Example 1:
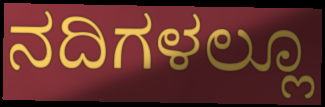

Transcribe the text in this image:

ನದಿಗಳಲ್ಲೂ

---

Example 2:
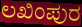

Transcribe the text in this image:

ಲಖಿಂಪುರ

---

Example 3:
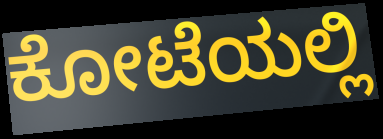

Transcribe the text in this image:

ಕೋಟೆಯಲ್ಲಿ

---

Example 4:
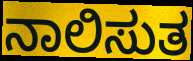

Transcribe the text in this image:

ನಾಲಿಸುತ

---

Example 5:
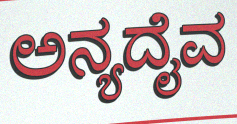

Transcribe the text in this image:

ಅನ್ಯದೈವ